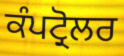
ਕੰਪਟ੍ਰੋਲਰ